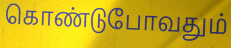
கொண்டுபோவதும்